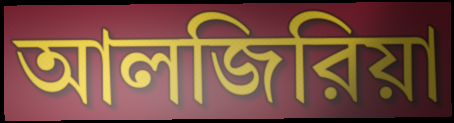
আলজিরিয়া